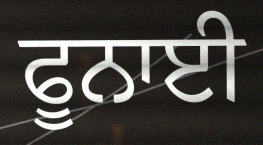
ਫੂਨਾਈ